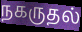
நகருதல்